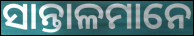
ସାନ୍ତାଳମାନେ